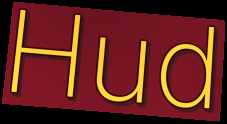
Hud